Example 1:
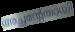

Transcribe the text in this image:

അച്ഛന്റേതായി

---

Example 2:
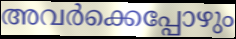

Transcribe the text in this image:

അവർക്കെപ്പോഴും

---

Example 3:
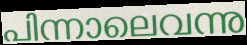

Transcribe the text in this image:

പിന്നാലെവന്നു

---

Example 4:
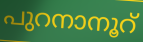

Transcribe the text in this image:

പുറനാനൂറ്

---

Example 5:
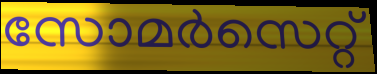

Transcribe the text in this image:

സോമർസെറ്റ്